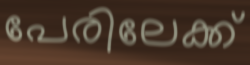
പേരിലേക്ക്